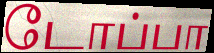
டோப்பா